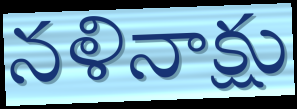
నళినాక్షు